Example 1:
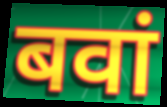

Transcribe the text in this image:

बवां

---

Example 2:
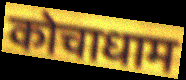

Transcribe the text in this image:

कोचाधाम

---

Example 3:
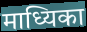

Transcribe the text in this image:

माध्यिका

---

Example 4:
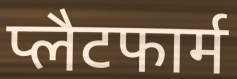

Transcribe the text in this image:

प्लैटफार्म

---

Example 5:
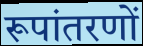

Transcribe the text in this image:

रूपांतरणों